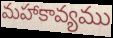
మహాకావ్యము